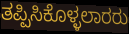
ತಪ್ಪಿಸಿಕೊಳ್ಳಲಾರರು